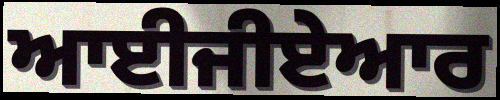
ਆਈਜੀਏਆਰ